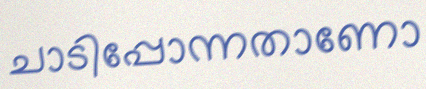
ചാടിപ്പോന്നതാണോ